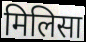
मिलिसा